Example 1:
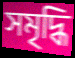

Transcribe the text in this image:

সমৃদ্ধি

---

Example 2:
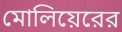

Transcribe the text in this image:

মোলিয়েরের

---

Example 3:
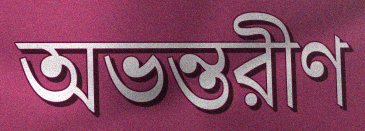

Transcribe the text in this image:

অভন্তরীণ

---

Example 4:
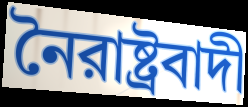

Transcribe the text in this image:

নৈরাষ্ট্রবাদী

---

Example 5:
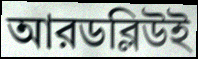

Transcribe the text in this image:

আরডব্লিউই